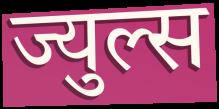
ज्युल्स